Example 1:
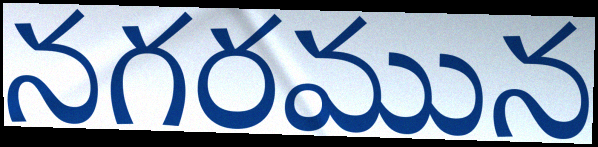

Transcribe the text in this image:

నగరమున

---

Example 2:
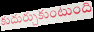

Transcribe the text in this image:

కుదుర్చుకుంటుంది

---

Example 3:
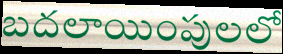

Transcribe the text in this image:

బదలాయింపులలో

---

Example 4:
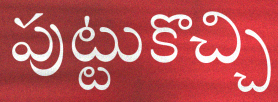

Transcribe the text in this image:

పుట్టుకొచ్చి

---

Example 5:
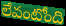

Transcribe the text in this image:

లేవంటోంది